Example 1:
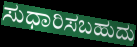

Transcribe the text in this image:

ಸುಧಾರಿಸಬಹುದು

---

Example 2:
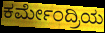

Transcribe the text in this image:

ಕರ್ಮೇಂದ್ರಿಯ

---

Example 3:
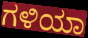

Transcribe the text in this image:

ಗಳಿಯಾ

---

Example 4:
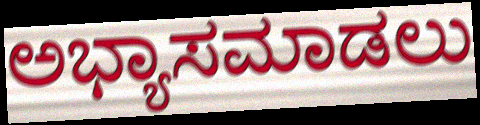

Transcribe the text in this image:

ಅಭ್ಯಾಸಮಾಡಲು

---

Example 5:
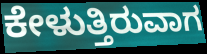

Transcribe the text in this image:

ಕೇಳುತ್ತಿರುವಾಗ